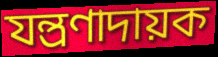
যন্ত্রণাদায়ক